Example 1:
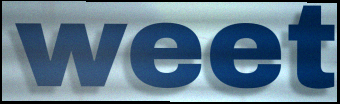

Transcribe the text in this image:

weet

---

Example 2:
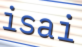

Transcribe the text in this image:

isai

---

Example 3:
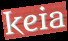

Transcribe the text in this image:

keia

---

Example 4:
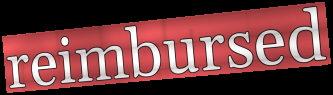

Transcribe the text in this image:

reimbursed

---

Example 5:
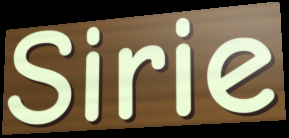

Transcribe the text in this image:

Sirie